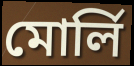
মোর্লি